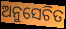
ଅନୁସେଚିତ